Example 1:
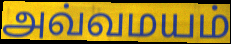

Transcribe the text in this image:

அவ்வமயம்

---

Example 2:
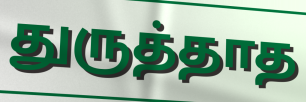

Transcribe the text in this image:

துருத்தாத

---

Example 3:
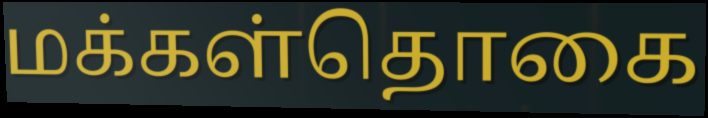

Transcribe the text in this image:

மக்கள்தொகை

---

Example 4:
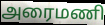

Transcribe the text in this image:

அரைமணி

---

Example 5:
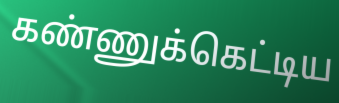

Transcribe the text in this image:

கண்ணுக்கெட்டிய